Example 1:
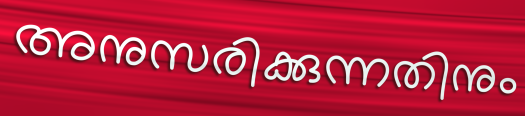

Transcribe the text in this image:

അനുസരിക്കുന്നതിനും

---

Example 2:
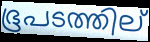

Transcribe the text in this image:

ഭൂപടത്തില്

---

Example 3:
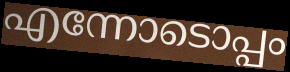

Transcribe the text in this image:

എന്നോടൊപ്പം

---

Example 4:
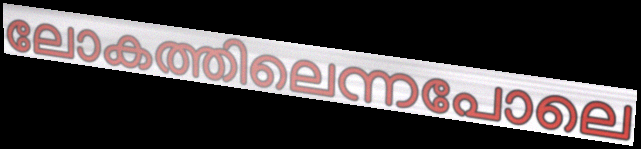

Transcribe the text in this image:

ലോകത്തിലെന്നപോലെ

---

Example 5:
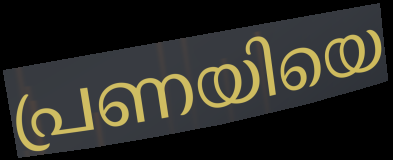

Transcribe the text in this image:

പ്രണയിയെ